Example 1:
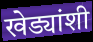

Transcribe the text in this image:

खेड्यांशी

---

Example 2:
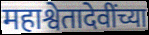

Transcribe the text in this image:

महाश्वेतादेवींच्या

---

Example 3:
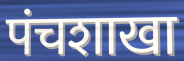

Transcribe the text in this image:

पंचशाखा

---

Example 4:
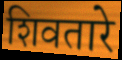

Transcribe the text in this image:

शिवतारे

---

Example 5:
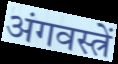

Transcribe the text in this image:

अंगवस्त्रें